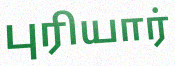
புரியார்